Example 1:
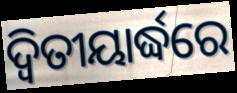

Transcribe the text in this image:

ଦ୍ୱିତୀୟାର୍ଦ୍ଧରେ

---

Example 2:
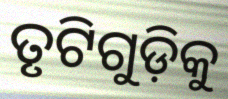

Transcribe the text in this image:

ତୃଟିଗୁଡ଼ିକୁ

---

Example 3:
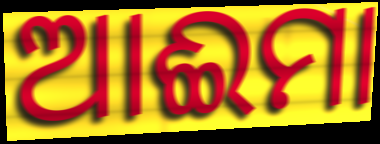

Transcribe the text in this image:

ଆଈମା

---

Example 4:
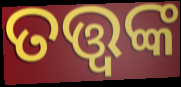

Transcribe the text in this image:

ତତ୍ତ୍ବଙ୍କ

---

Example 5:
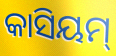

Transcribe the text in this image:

କାସିୟମ୍